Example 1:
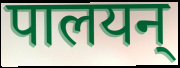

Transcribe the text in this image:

पालयन्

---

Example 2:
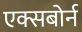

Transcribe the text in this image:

एक्सबोर्न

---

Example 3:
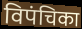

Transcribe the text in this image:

विपंचिका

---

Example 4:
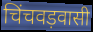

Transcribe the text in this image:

चिंचवड़वासी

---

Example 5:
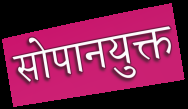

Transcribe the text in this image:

सोपानयुक्त